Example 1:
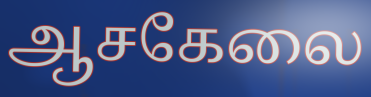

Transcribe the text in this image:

ஆசகேலை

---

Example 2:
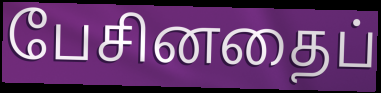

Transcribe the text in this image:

பேசினதைப்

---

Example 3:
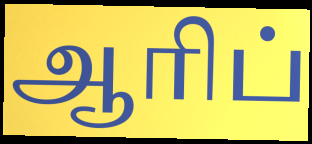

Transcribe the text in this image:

ஆரிப்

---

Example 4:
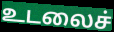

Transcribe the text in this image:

உடலைச்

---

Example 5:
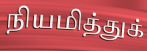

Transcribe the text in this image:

நியமித்துக்